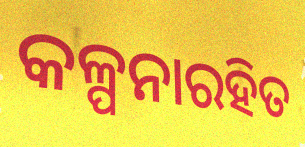
କଳ୍ପନାରହିତ